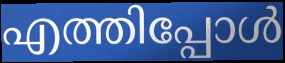
എത്തിപ്പോൾ